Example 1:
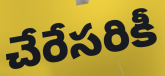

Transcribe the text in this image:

చేరేసరికీ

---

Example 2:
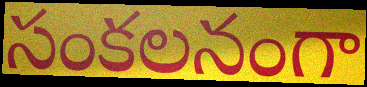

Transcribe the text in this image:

సంకలనంగా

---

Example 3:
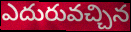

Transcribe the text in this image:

ఎదురువచ్చిన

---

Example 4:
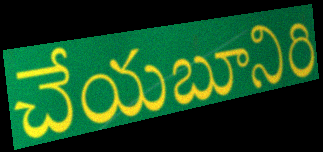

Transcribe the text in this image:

చేయబూనిరి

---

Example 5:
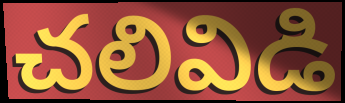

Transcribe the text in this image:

చలివిడి